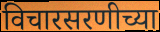
विचारसरणीच्या